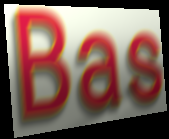
Bas